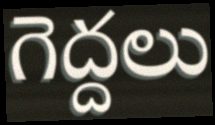
గెద్దలు